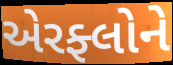
એરફ્લોને